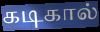
கடிகால்